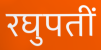
रघुपतीं